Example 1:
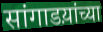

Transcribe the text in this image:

सांगाडय़ांच्या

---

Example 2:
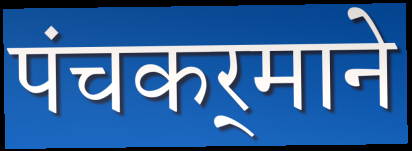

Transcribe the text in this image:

पंचकर्माने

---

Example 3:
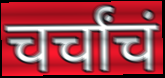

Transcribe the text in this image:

चर्चांचं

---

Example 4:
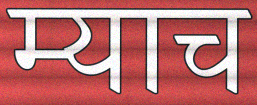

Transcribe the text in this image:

म्याच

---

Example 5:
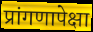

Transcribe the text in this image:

प्रांगणापेक्षा